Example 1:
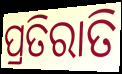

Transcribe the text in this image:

ପ୍ରତିରାତି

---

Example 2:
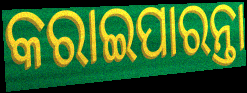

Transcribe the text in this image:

କରାଇପାରନ୍ତା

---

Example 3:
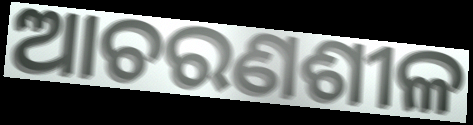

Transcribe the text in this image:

ଆଚରଣଶୀଳ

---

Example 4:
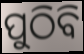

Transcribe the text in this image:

ପୁଠିବି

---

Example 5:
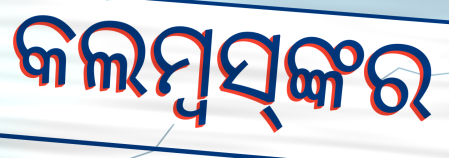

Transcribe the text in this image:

କଲମ୍ୱସ୍‌ଙ୍କର